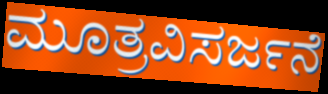
ಮೂತ್ರವಿಸರ್ಜನೆ